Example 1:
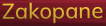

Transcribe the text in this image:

Zakopane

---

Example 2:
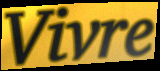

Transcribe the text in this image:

Vivre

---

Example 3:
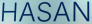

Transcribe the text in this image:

HASAN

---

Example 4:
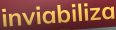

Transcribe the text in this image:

inviabiliza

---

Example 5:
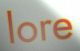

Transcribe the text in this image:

lore